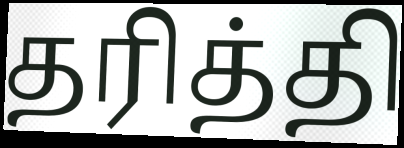
தரித்தி